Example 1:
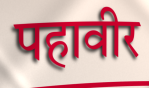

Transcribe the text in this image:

पहावीर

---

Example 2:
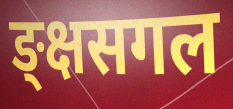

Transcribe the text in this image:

ङ्क्षसगल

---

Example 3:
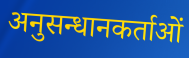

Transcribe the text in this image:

अनुसन्धानकर्ताओं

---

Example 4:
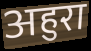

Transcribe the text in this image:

अहुरा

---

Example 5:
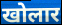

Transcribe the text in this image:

खोलार